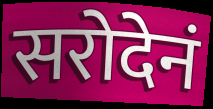
सरोदेनं